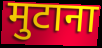
मुटाना